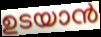
ഉടയാൻ